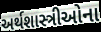
અર્થશાસ્ત્રીઓના